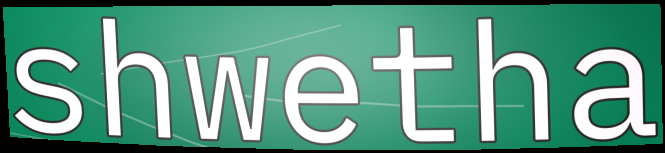
shwetha